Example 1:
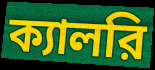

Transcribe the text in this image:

ক্যালরি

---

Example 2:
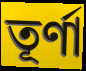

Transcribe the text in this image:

তূর্ণা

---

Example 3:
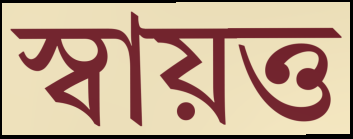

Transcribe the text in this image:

স্বায়ত্ত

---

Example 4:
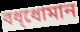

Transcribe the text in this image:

বধ্ধোমান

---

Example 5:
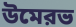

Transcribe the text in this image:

উমেরভ